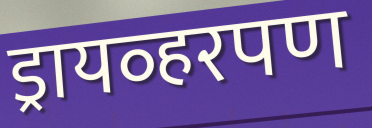
ड्रायव्हरपण